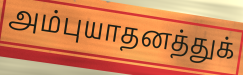
அம்புயாதனத்துக்